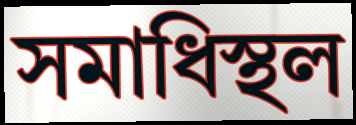
সমাধিস্থল